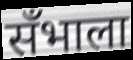
सँभाला